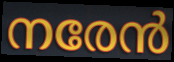
നരേൻ